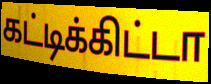
கட்டிக்கிட்டா